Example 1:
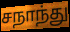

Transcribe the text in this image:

சநாந்து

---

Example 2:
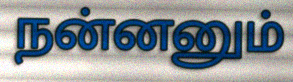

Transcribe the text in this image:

நன்னனும்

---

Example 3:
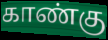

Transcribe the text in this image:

காண்கு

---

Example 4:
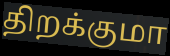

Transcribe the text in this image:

திறக்குமா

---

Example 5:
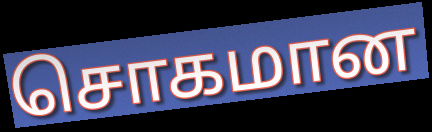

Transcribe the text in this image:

சொகமான